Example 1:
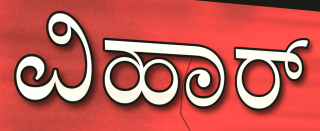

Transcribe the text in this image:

ವಿಹಾರ್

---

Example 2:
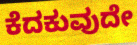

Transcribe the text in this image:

ಕೆದಕುವುದೇ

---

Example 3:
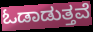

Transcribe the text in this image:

ಓಡಾಡುತ್ತವೆ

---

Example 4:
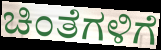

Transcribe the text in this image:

ಚಿಂತೆಗಳಿಗೆ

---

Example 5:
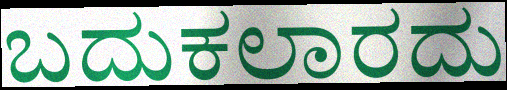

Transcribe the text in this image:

ಬದುಕಲಾರದು